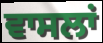
ਵਾਸਲਾਂ